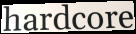
hardcore